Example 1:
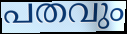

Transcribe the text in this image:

പതവും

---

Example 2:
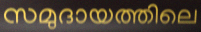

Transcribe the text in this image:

സമുദായത്തിലെ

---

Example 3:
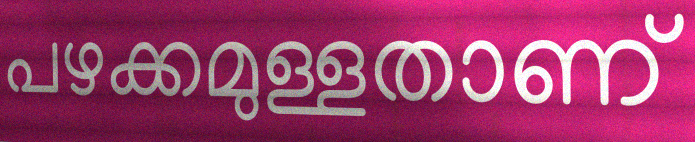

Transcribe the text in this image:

പഴക്കമുള്ളതാണ്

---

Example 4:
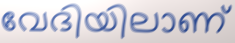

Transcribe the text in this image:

വേദിയിലാണ്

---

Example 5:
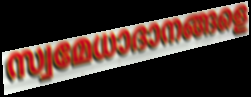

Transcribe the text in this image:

സ്വമേധാദാനങ്ങളെ